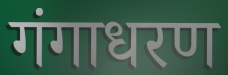
गंगाधरण